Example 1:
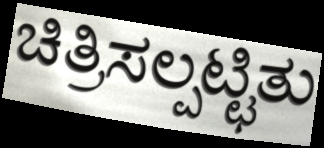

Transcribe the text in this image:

ಚಿತ್ರಿಸಲ್ಪಟ್ಟಿತು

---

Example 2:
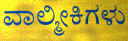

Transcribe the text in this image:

ವಾಲ್ಮೀಕಿಗಳು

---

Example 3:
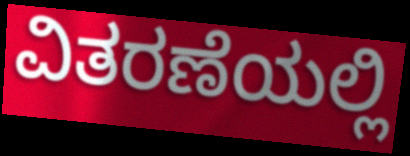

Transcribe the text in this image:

ವಿತರಣೆಯಲ್ಲಿ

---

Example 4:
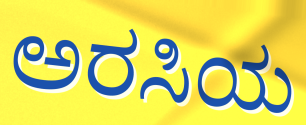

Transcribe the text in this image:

ಅರಸಿಯ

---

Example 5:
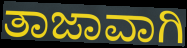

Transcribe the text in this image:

ತಾಜಾವಾಗಿ